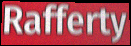
Rafferty